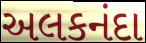
અલકનંદા